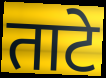
ताटे